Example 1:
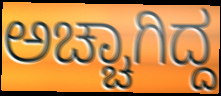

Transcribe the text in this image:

ಅಚ್ಚಾಗಿದ್ದ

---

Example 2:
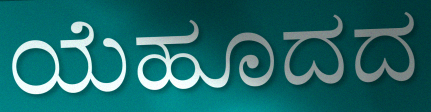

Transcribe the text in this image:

ಯೆಹೂದದ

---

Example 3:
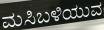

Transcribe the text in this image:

ಮಸಿಬಳಿಯುವ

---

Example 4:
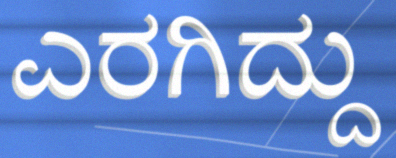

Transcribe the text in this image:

ಎರಗಿದ್ದು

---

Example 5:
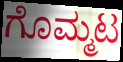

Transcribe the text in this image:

ಗೊಮ್ಮಟ